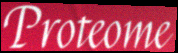
Proteome